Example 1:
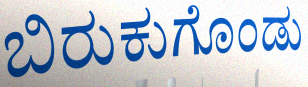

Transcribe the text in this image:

ಬಿರುಕುಗೊಂಡು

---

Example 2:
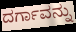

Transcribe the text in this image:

ದರ್ಗಾವನ್ನು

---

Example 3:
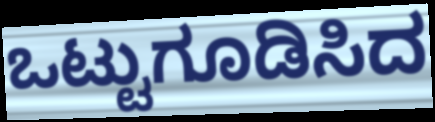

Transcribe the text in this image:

ಒಟ್ಟುಗೂಡಿಸಿದ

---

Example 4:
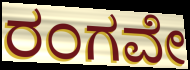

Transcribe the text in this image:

ರಂಗವೇ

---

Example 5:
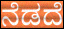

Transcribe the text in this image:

ನೆಡದೆ